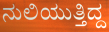
ನುಲಿಯುತ್ತಿದ್ದ